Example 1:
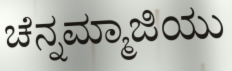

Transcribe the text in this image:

ಚೆನ್ನಮ್ಮಾಜಿಯು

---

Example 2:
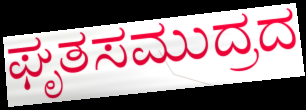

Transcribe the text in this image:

ಘೃತಸಮುದ್ರದ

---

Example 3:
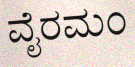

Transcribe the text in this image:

ವೈರಮಂ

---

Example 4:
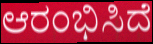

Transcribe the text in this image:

ಆರಂಭಿಸಿದೆ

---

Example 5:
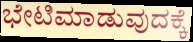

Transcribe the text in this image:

ಭೇಟಿಮಾಡುವುದಕ್ಕೆ